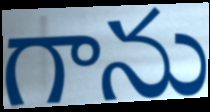
గాను